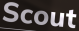
Scout